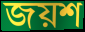
জয়শ